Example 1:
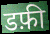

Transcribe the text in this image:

डफ़ी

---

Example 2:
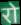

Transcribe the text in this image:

रो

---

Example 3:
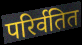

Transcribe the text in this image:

परिर्वतित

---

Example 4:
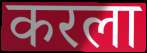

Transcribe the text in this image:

करला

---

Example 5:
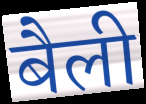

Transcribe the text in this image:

बैली